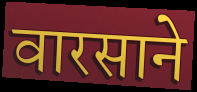
वारसाने